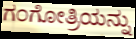
ಗಂಗೋತ್ರಿಯನ್ನು